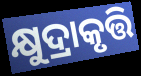
କ୍ଷୁଦ୍ରାକୃତ୍ତି